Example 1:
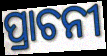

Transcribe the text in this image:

ପ୍ରାଚନୀ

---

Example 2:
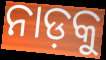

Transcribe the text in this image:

ନାଡ଼କୁ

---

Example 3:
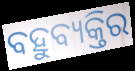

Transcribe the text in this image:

ବହୁବ୍ୟକ୍ତିର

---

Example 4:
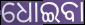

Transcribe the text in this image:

ଧୋଇବା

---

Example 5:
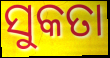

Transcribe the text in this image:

ସୁକତା